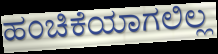
ಹಂಚಿಕೆಯಾಗಲಿಲ್ಲ